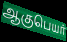
ஆகுபெயர்